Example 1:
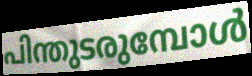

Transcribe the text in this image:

പിന്തുടരുമ്പോൾ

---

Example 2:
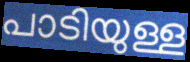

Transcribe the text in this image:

പാടിയുള്ള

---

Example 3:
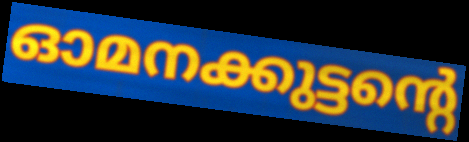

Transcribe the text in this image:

ഓമനക്കുട്ടന്റെ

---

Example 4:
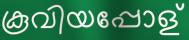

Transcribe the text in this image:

കൂവിയപ്പോള്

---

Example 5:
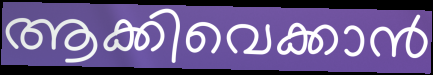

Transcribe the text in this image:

ആക്കിവെക്കാൻ